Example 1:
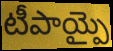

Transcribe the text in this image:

టీపాయ్పై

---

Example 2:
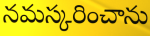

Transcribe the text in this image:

నమస్కరించాను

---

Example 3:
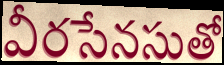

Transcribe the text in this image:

వీరసేనసుతో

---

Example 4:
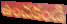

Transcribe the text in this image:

ఉంచకండి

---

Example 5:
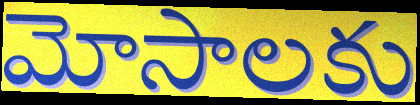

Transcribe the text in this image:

మోసాలకు